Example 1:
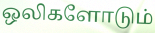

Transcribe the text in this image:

ஒலிகளோடும்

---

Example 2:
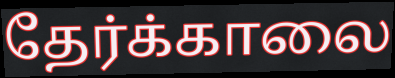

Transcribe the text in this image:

தேர்க்காலை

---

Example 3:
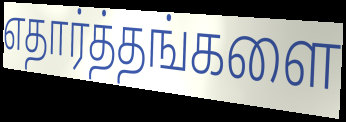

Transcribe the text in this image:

எதார்த்தங்களை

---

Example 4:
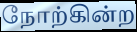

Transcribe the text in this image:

நோற்கின்ற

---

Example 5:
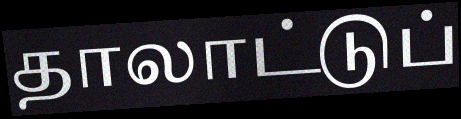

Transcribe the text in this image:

தாலாட்டுப்